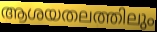
ആശയതലത്തിലും